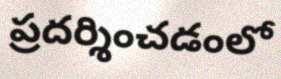
ప్రదర్శించడంలో